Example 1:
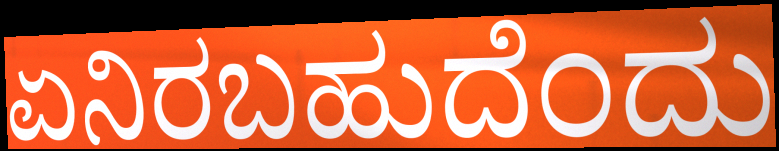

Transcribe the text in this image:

ಏನಿರಬಹುದೆಂದು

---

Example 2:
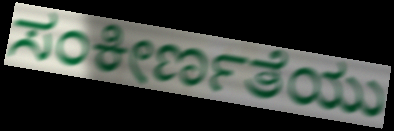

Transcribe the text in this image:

ಸಂಕೀರ್ಣತೆಯು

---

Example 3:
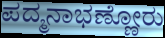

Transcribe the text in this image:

ಪದ್ಮನಾಭಣ್ಣೋರು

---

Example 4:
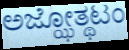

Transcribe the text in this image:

ಅಜ್ಝೋತ್ಥಟಂ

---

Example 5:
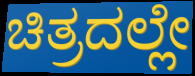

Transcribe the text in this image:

ಚಿತ್ರದಲ್ಲೇ